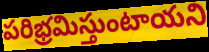
పరిభ్రమిస్తుంటాయని